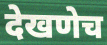
देखणेच